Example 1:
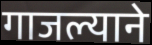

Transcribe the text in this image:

गाजल्याने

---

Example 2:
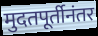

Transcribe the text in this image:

मुदतपूर्तीनंतर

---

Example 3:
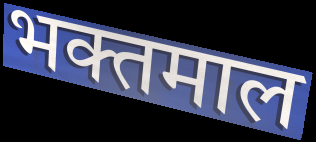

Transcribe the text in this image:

भक्तमाल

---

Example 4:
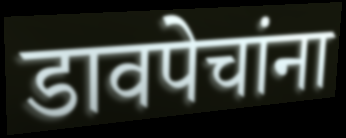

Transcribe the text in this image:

डावपेचांना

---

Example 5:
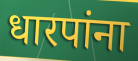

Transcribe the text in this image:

धारपांना